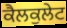
ਕੈਲਕੁਲੇਟ